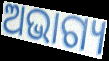
ଅଭାଗ୍ୟ